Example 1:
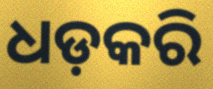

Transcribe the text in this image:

ଧଡ଼କରି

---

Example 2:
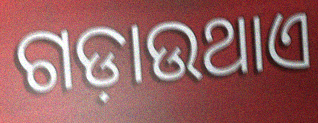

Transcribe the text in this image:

ଗଡ଼ାଉଥାଏ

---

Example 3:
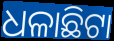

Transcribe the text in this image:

ଧଳାଛିଟା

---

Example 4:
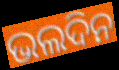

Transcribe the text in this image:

ଭଲଦିନ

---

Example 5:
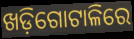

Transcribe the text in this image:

ଖଡ଼ିଗୋଟାଳିରେ